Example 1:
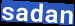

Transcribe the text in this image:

sadan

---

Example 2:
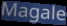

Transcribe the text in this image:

Magale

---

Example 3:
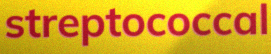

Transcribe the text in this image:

streptococcal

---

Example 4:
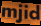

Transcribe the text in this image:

mjid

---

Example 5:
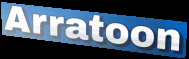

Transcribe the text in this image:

Arratoon